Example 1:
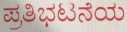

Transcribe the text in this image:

ಪ್ರತಿಭಟನೆಯ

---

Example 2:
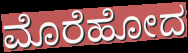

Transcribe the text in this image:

ಮೊರೆಹೋದ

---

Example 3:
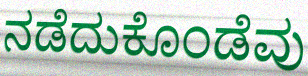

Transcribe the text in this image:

ನಡೆದುಕೊಂಡೆವು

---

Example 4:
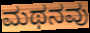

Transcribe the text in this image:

ಮಥನವು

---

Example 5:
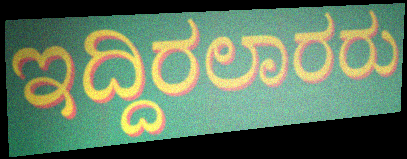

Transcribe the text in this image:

ಇದ್ದಿರಲಾರರು